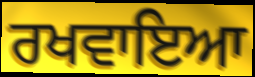
ਰਖਵਾਇਆ